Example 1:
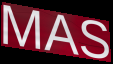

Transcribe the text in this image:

MAS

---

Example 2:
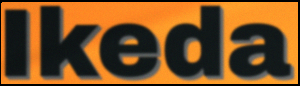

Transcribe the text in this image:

Ikeda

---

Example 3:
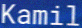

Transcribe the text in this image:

Kamil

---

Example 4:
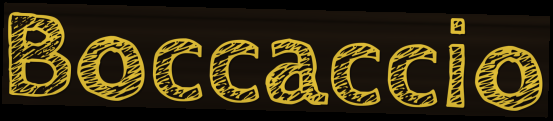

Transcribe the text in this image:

Boccaccio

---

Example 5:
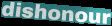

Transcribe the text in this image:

dishonour